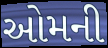
ઓમની